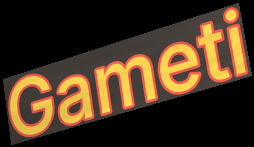
Gameti